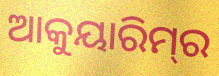
ଆକୁୟାରିମ୍‌ର